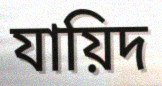
যায়িদ